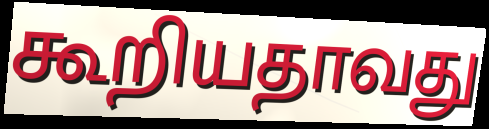
கூறியதாவது